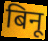
बिनू